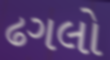
ઢગલો